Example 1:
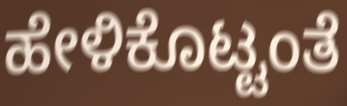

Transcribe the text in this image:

ಹೇಳಿಕೊಟ್ಟಂತೆ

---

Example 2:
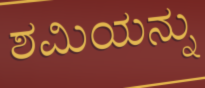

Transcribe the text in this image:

ಶಮಿಯನ್ನು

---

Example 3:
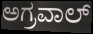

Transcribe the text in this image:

ಅಗ್ರವಾಲ್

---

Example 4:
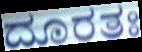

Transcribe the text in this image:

ದೂರತಃ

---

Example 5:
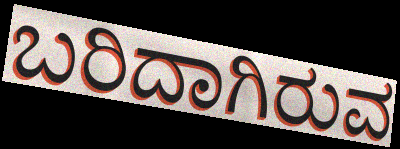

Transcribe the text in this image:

ಬರಿದಾಗಿರುವ